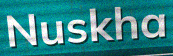
Nuskha